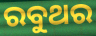
ରବୁଥର